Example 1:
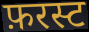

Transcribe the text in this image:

फ़रस्ट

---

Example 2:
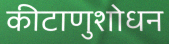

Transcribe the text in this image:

कीटाणुशोधन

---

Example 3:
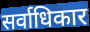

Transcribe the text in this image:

सर्वाधिकार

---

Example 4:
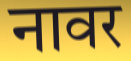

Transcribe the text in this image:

नावर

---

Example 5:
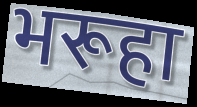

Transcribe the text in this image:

भरूहा